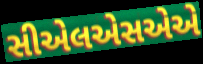
સીએલએસએએ